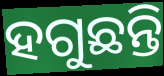
ହଗୁଛନ୍ତି